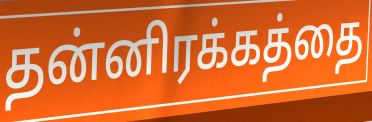
தன்னிரக்கத்தை